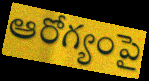
ఆరోగ్యంపై